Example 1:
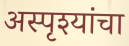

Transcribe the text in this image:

अस्पृश्यांचा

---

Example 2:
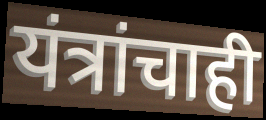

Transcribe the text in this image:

यंत्रांचाही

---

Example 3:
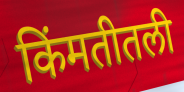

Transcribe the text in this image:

किंमतीतली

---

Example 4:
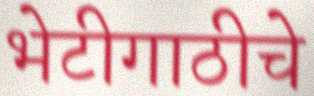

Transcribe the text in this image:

भेटीगाठीचे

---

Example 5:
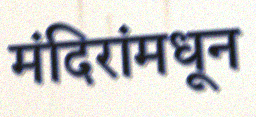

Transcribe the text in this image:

मंदिरांमधून